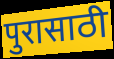
पुरासाठी